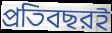
প্রতিবছরই